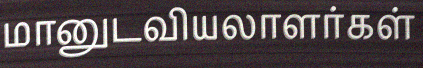
மானுடவியலாளர்கள்